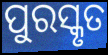
ପୁରସ୍କୃତ